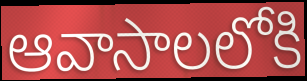
ఆవాసాలలోకి